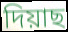
দিয়াছ